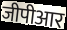
जीपीआर